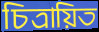
চিত্রায়িত